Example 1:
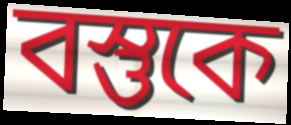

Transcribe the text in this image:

বস্তুকে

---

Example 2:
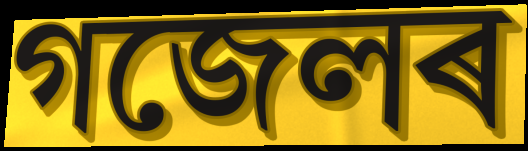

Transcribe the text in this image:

গজেলৰ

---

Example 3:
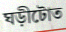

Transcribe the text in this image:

ঘড়ীটোত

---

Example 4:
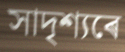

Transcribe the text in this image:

সাদৃশ্যৰে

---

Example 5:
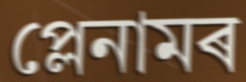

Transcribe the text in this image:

প্লেনামৰ